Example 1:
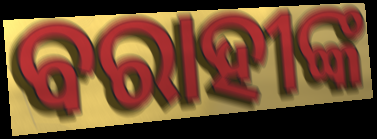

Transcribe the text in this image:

ବରାହୀଙ୍କ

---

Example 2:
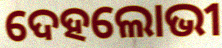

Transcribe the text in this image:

ଦେହଲୋଭୀ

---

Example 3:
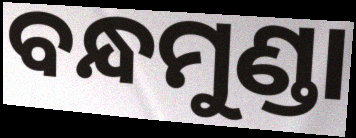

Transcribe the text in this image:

ବନ୍ଧମୁଣ୍ଡା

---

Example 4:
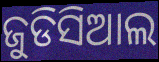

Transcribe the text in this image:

ଜୁଡିସିଆଲ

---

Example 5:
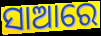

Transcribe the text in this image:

ସାଆରେ